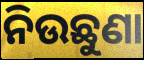
ନିଉଛୁଣା